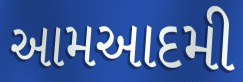
આમઆદમી